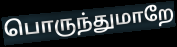
பொருந்துமாறே